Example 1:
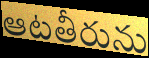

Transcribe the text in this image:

ఆటతీరును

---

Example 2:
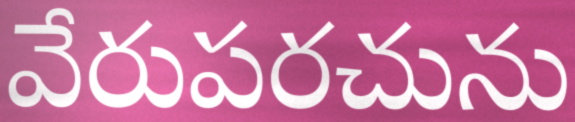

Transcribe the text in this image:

వేరుపరచును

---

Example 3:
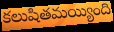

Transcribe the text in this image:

కలుషితమయ్యింది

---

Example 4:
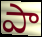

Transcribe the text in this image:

పా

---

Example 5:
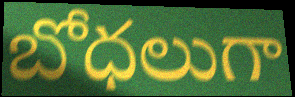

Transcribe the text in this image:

బోధలుగా